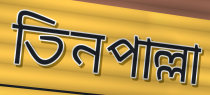
তিনপাল্লা